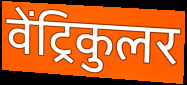
वेंट्रिकुलर